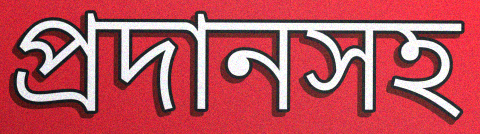
প্রদানসহ